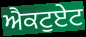
ਐਕਟੁਏਟ